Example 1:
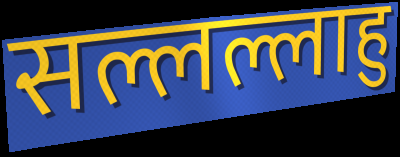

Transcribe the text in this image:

सल्लल्लाहु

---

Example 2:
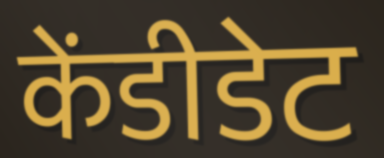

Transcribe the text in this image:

केंडीडेट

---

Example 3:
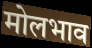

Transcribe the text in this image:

मोलभाव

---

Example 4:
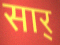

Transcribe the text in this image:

सार्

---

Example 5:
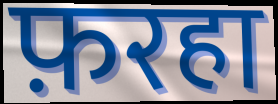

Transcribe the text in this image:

फ़रहा